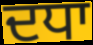
ਦਧਾ